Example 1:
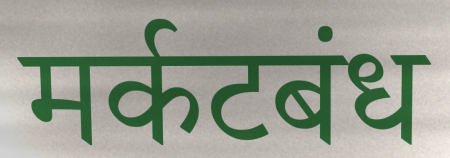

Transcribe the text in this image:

मर्कटबंध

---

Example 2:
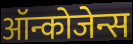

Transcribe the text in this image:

ऑन्कोजेन्स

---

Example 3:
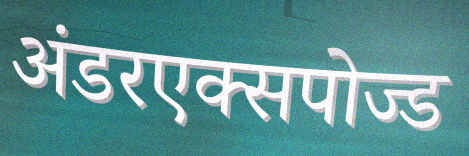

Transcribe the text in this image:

अंडरएक्सपोज्ड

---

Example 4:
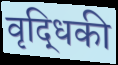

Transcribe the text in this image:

वृद्धिकी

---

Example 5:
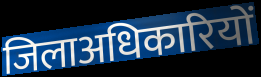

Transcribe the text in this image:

जिलाअधिकारियों